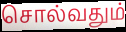
சொல்வதும்